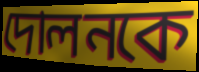
দোলনকে